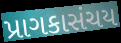
પ્રાગકાસંચય